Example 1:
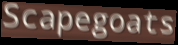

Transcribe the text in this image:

Scapegoats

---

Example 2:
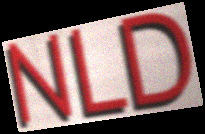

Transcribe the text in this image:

NLD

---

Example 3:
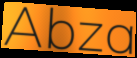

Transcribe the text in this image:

Abza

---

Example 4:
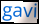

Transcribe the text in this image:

gavi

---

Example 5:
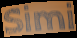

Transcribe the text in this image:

Simi